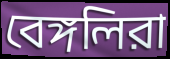
বেঙ্গলিরা